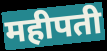
महीपती